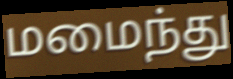
மமைந்து